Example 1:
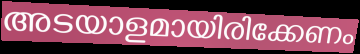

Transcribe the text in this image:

അടയാളമായിരിക്കേണം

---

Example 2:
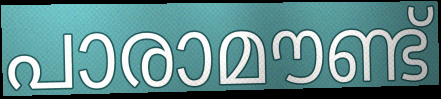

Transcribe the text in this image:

പാരാമൗണ്ട്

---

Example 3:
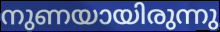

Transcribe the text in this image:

നുണയായിരുന്നു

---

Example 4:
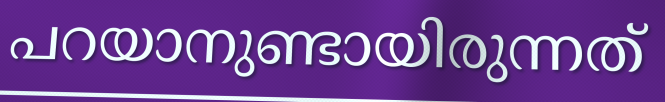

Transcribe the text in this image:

പറയാനുണ്ടായിരുന്നത്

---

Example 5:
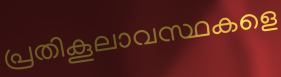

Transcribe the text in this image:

പ്രതികൂലാവസ്ഥകളെ